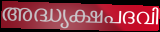
അദ്ധ്യക്ഷപദവി